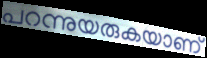
പറന്നുയരുകയാണ്